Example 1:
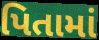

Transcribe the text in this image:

પિતામાં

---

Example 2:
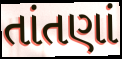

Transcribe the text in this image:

તાંતણાં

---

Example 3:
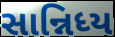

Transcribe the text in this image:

સાન્નિધ્ય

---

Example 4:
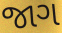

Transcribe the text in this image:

જાગ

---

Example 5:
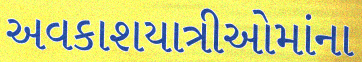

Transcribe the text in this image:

અવકાશયાત્રીઓમાંના